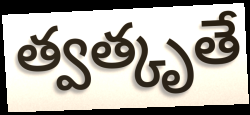
త్వత్కృతే